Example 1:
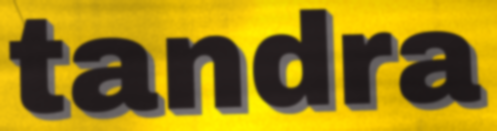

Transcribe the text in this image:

tandra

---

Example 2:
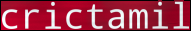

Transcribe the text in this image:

crictamil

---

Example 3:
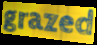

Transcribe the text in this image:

grazed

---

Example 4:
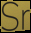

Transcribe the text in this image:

Sr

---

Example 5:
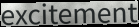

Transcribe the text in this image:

excitement